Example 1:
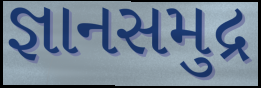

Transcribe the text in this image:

જ્ઞાનસમુદ્ર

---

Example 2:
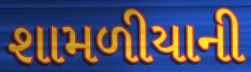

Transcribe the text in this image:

શામળીયાની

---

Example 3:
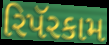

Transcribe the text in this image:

રિપૅરકામ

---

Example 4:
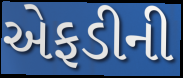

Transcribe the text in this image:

એફડીની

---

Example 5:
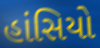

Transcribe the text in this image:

હાંસિયો